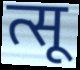
त्सू